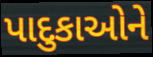
પાદુકાઓને